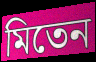
মিতেন